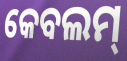
କେବଲମ୍